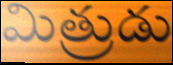
మిత్రుడు